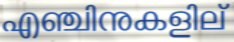
എഞ്ചിനുകളില്